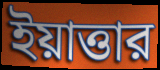
ইয়াত্তার